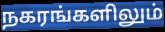
நகரங்களிலும்